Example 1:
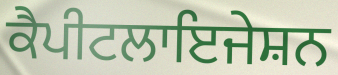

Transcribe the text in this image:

ਕੈਪੀਟਲਾਇਜੇਸ਼ਨ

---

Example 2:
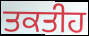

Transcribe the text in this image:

ਤਕਤੀਹ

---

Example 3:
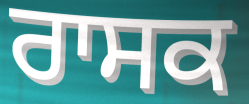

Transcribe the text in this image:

ਰਾਸਕ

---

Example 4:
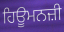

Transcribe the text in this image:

ਹਿਊਮਨਜ਼ੀ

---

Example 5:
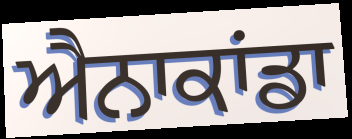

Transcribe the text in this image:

ਐਨਾਕਾਂਡਾ